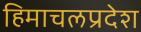
हिमाचलप्रदेश